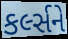
કર્લ્સને